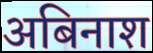
अबिनाश